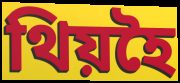
থিয়হৈ